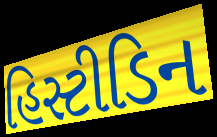
હિસ્ટીડિન